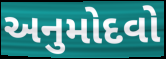
અનુમોદવો